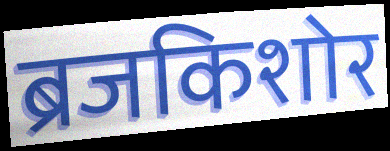
ब्रजकिशोर